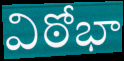
విఠోభా